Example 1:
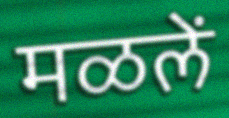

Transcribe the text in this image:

मळलें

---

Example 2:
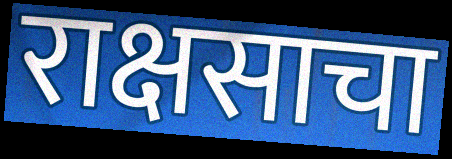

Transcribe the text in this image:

राक्षसाचा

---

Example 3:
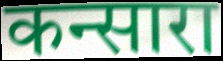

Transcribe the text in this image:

कन्सारा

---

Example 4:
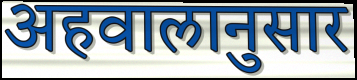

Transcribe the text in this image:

अहवालानुसार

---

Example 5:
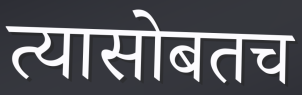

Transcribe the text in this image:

त्यासोबतच